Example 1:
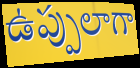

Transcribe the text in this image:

ఉప్పులాగా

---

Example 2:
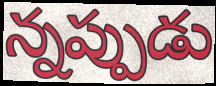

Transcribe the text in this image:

న్నప్పుడు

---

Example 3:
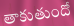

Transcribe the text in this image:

తాకుతుందో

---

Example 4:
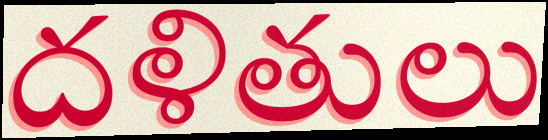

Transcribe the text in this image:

దళితులు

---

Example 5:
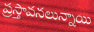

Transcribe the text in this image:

ప్రస్తావనలున్నాయి